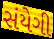
સંયેગી